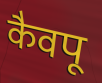
कैवपू